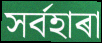
সৰ্বহাৰা